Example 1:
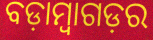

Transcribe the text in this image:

ବଡ଼ାମ୍ବାଗଡ଼ର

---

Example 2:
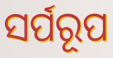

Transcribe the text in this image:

ସର୍ପରୂପ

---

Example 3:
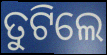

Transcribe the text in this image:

ତୁଟିଲେ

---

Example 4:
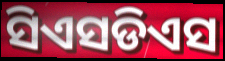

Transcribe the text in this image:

ସିଏସଡିଏସ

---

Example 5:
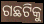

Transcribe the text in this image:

ଗଛଟିକୁ